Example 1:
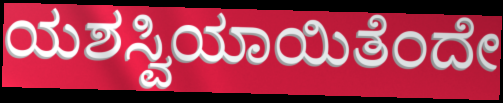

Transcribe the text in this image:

ಯಶಸ್ವಿಯಾಯಿತೆಂದೇ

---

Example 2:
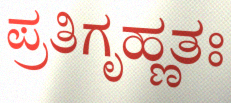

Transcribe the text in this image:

ಪ್ರತಿಗೃಹ್ಣತಃ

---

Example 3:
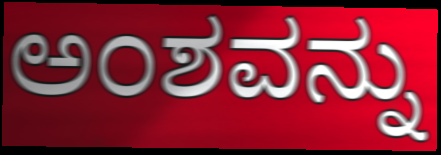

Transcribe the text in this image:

ಅಂಶವನ್ನು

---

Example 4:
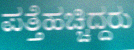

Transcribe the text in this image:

ಪತ್ತೆಹಚ್ಚಿದ್ದರು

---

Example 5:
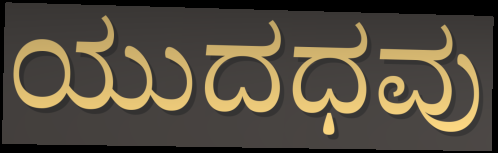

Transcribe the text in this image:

ಯುದಧವು